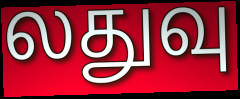
லதுவு